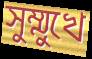
সুম্মুখে